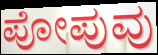
ಪೋಪುವು